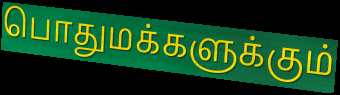
பொதுமக்களுக்கும்